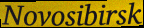
Novosibirsk